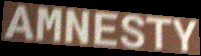
AMNESTY